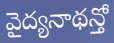
వైద్యనాథన్తో